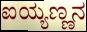
ಐಯ್ಯಣ್ಣನ